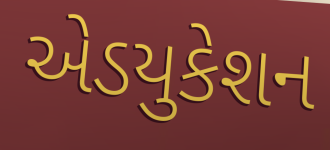
એડયુકેશન